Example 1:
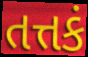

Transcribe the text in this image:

તત્તકં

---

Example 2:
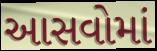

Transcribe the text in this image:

આસવોમાં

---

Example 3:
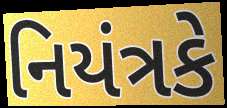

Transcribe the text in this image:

નિયંત્રકે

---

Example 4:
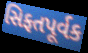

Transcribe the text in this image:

સિફતપૂર્વક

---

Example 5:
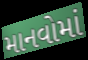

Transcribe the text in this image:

માનવોમાં